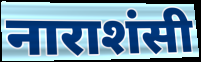
नाराशंसी